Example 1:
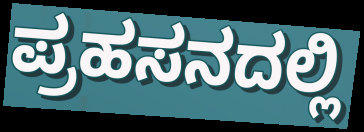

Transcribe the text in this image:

ಪ್ರಹಸನದಲ್ಲಿ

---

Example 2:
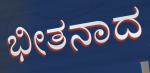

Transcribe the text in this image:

ಭೀತನಾದ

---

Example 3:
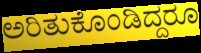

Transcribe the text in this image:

ಅರಿತುಕೊಂಡಿದ್ದರೂ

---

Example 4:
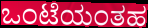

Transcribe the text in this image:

ಒಂಟೆಯಂತಹ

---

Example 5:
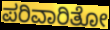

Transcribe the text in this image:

ಪರಿವಾರಿತೋ